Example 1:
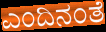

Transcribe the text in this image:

ಎಂದಿನಂತೆ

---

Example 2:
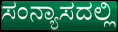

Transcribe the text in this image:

ಸಂನ್ಯಾಸದಲ್ಲಿ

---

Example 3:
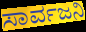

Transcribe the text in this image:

ಸಾರ್ವಜನಿ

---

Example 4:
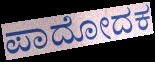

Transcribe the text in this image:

ಪಾದೋದಕ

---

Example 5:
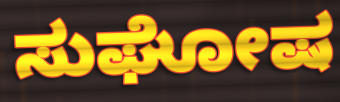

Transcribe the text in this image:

ಸುಘೋಷ